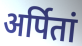
अर्पितां